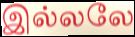
இல்லலே